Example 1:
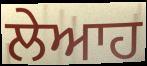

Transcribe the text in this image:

ਲੇਆਹ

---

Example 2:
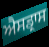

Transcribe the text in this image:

ਐਸਡ੍ਰਾਸ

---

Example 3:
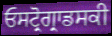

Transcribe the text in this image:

ਓਸਟ੍ਰੋਗ੍ਰਾਡਸਕੀ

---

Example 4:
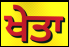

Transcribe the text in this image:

ਖੇਤਾ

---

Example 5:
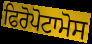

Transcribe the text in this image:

ਫਿਰੋਪੋਟਾਮੋਸ